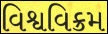
વિશ્વવિક્રમ